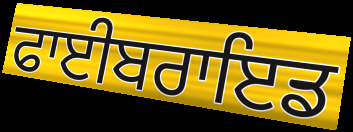
ਫਾਈਬਰਾਇਡ